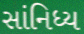
સાંનિધ્ય